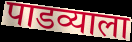
पाडव्याला